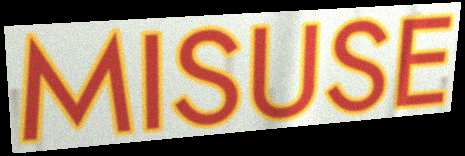
MISUSE